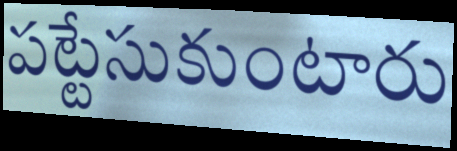
పట్టేసుకుంటారు